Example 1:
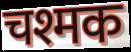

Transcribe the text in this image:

चश्मक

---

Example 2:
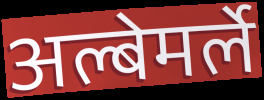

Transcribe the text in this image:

अल्बेमर्ले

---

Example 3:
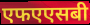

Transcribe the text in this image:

एफएएसबी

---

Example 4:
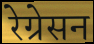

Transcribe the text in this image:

रेग्रेसन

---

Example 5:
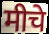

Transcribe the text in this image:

मीचे